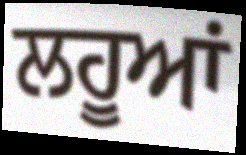
ਲਹੂਆਂ